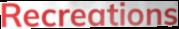
Recreations